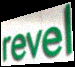
revel